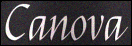
Canova